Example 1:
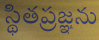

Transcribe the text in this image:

స్థితప్రజ్ఞను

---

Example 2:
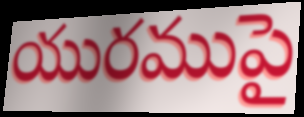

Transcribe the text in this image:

యురముపై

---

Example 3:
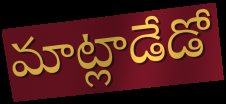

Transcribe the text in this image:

మాట్లాడేడో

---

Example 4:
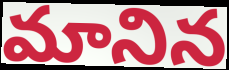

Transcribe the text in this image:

మానిన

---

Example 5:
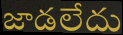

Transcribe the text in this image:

జాడలేదు